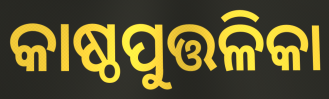
କାଷ୍ଠପୁତ୍ତଳିକା